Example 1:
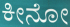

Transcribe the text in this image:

ಕೀನೋ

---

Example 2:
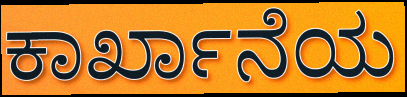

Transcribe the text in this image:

ಕಾರ್ಖಾನೆಯ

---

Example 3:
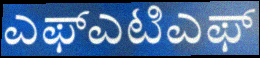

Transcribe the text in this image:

ಎಫ್ಎಟಿಎಫ್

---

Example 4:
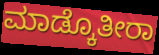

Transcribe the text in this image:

ಮಾಡ್ಕೊತೀರಾ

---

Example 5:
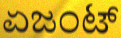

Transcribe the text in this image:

ಏಜಂಟ್